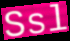
Ssl